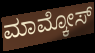
ಮಾಮ್ಕೋಸ್